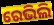
ରେଭିଲି